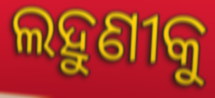
ଲହୁଣୀକୁ